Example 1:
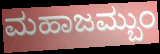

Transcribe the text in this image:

ಮಹಾಜಮ್ಬುಂ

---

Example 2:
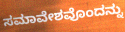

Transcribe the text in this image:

ಸಮಾವೇಶವೊಂದನ್ನು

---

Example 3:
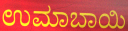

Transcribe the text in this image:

ಉಮಾಬಾಯಿ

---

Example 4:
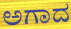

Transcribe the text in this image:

ಅಗಾದ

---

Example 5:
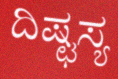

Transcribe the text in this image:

ದಿಷ್ಟಸ್ಯ